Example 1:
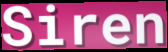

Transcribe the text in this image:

Siren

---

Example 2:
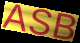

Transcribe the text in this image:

ASB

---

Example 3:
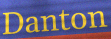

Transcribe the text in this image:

Danton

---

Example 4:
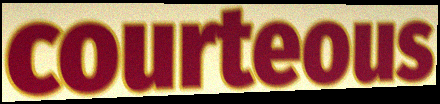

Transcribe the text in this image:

courteous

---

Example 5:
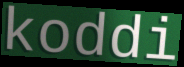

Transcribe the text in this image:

koddi